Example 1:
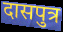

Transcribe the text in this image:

दासपुत्र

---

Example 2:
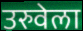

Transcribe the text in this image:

उरुवेला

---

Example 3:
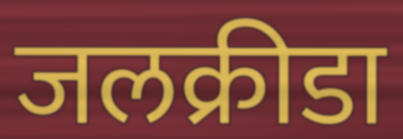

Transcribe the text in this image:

जलक्रीडा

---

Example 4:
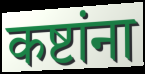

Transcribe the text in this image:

कष्टांना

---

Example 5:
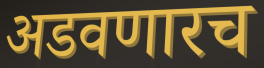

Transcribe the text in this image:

अडवणारच